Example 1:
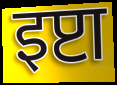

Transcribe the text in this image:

इप्टा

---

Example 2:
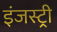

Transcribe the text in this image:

इंजस्ट्री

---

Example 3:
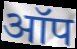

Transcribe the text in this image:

ऑप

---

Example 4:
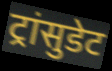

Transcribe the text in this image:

ट्रांसुडेट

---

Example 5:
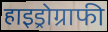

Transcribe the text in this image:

हाइड्रोग्राफी